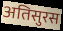
अतिसुरस